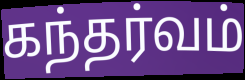
கந்தர்வம்